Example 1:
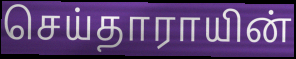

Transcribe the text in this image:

செய்தாராயின்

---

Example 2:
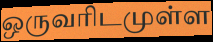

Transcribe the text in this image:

ஒருவரிடமுள்ள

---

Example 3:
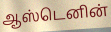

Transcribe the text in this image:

ஆஸ்டெனின்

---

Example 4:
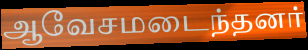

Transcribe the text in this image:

ஆவேசமடைந்தனர்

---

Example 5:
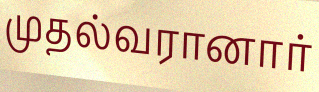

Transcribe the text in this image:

முதல்வரானார்